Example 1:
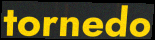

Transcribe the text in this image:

tornedo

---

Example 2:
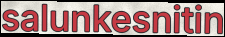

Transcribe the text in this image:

salunkesnitin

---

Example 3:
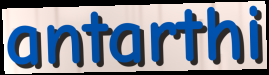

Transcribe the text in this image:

antarthi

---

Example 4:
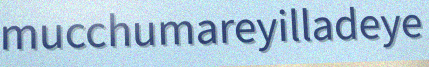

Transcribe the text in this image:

mucchumareyilladeye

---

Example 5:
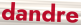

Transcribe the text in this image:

dandre